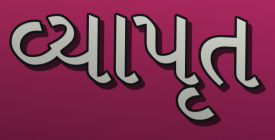
વ્યાપૃત